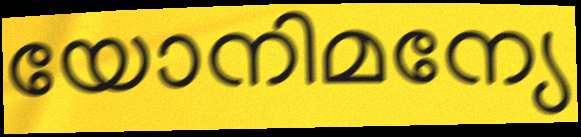
യോനിമന്യേ